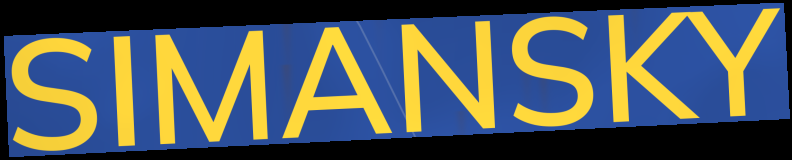
SIMANSKY